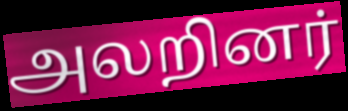
அலறினர்